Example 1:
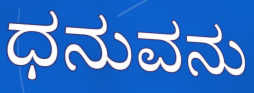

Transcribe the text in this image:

ಧನುವನು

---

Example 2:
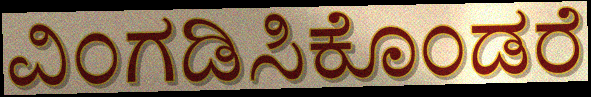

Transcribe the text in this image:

ವಿಂಗಡಿಸಿಕೊಂಡರೆ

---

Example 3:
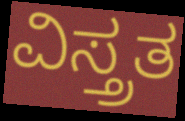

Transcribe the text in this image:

ವಿಸ್ತ್ರತ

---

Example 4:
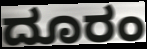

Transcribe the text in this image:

ದೂರಂ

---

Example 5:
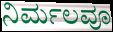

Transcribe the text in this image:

ನಿರ್ಮಲವೂ